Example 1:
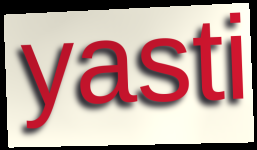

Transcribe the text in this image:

yasti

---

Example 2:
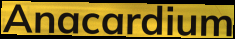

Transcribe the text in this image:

Anacardium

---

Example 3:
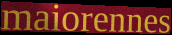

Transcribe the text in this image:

maiorennes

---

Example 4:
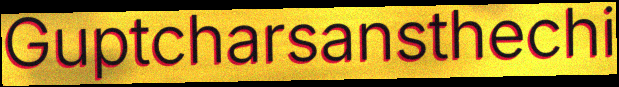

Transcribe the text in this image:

Guptcharsansthechi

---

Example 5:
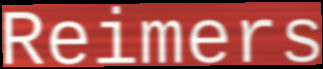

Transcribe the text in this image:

Reimers